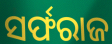
ସର୍ଫରାଜ